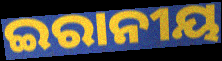
ଇରାନୀୟ